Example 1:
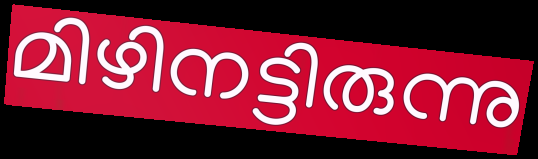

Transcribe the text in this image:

മിഴിനട്ടിരുന്നു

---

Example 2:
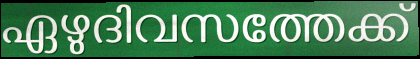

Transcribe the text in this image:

ഏഴുദിവസത്തേക്ക്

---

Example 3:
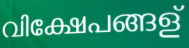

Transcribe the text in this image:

വിക്ഷേപങ്ങള്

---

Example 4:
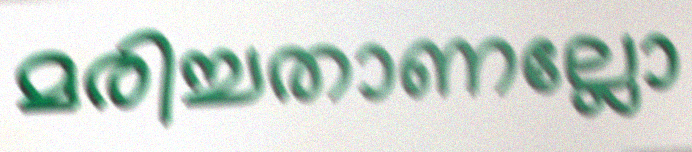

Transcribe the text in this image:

മരിച്ചതാണല്ലോ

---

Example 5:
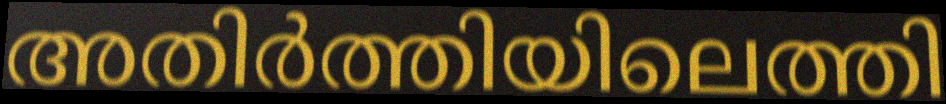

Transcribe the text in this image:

അതിർത്തിയിലെത്തി